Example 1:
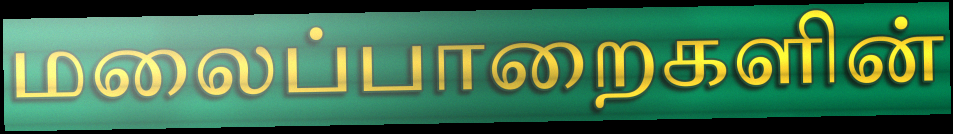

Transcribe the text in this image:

மலைப்பாறைகளின்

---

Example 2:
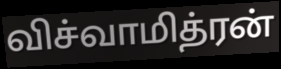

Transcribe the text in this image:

விச்வாமித்ரன்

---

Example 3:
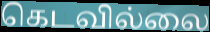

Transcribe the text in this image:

கெடவில்லை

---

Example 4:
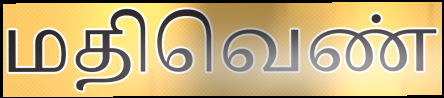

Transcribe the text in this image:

மதிவெண்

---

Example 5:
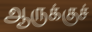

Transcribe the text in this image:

ஆருக்குச்